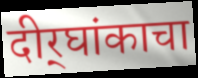
दीर्घांकाचा